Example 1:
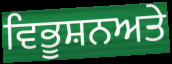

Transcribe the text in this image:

ਵਿਭੂਸ਼ਨਅਤੇ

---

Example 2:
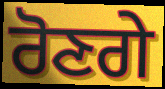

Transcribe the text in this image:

ਰੋਣਗੇ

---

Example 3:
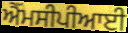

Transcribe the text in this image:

ਐੱਮਸੀਪੀਆਈ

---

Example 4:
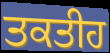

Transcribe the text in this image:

ਤਕਤੀਹ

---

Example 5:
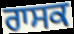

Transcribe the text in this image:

ਰਾਸਕ